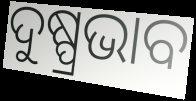
ଦୁଷ୍ପ୍ରଭାବ